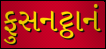
ફુસનટ્ઠાનં